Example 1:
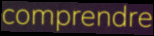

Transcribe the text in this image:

comprendre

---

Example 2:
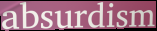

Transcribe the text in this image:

absurdism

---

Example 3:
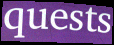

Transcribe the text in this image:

quests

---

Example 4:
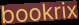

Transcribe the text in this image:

bookrix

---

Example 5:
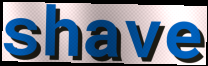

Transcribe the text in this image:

shave